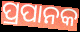
ପ୍ରପାନକ